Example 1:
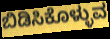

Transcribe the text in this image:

ಬಿಡಿಸಿಕೊಳ್ಳುವ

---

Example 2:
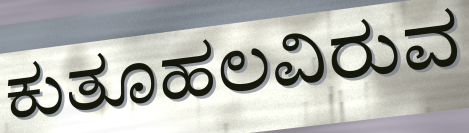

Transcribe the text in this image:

ಕುತೂಹಲವಿರುವ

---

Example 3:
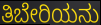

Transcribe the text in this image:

ತಿಬೇರಿಯನು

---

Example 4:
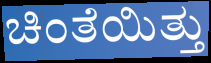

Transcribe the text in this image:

ಚಿಂತೆಯಿತ್ತು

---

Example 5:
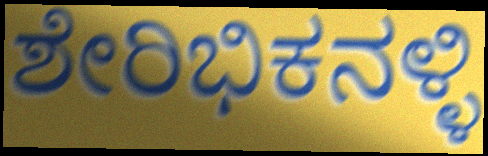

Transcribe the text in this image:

ಶೇರಿಭಿಕನಳ್ಳಿ